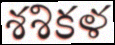
శశికళ